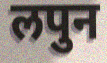
लपुन